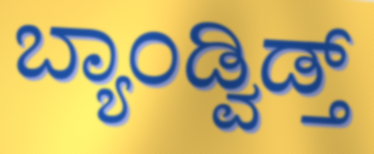
ಬ್ಯಾಂಡ್ವಿಡ್ತ್